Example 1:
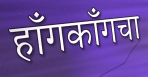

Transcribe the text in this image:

हॉंगकॉंगचा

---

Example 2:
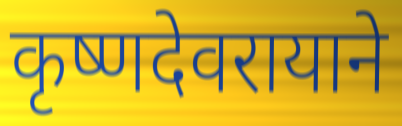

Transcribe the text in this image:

कृष्णदेवरायाने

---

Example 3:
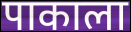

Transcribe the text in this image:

पाकाला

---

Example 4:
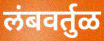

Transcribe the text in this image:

लंबवर्तुळ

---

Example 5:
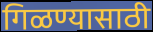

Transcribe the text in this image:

गिळण्यासाठी